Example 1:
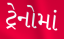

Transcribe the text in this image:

ટ્રેનોમાં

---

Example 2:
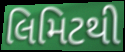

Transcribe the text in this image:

લિમિટથી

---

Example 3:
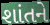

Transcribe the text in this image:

શાંતને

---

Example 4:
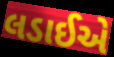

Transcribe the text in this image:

લડાઈએ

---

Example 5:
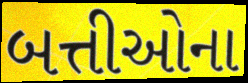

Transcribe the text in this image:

બત્તીઓના